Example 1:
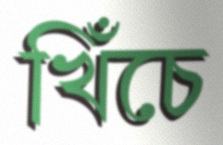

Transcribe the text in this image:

খিঁচে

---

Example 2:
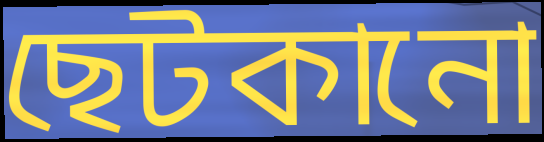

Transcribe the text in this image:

ছেটকানো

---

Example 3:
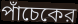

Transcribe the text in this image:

পাঁচেকের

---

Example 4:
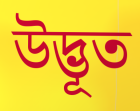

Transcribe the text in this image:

উদ্ভূত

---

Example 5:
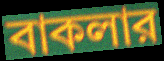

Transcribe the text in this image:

বাকলার